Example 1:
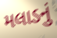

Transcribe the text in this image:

મલાડનું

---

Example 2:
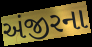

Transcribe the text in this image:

અંજીરના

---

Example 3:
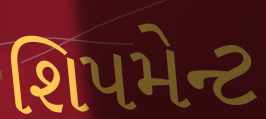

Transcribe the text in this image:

શિપમેન્ટ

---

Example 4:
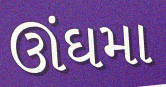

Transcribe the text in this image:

ઊંઘમા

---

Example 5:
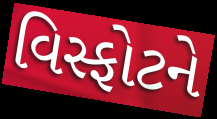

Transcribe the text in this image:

વિસ્ફોટને